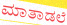
ಮಾತಾಡಲೆ